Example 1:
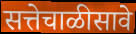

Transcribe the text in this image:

सत्तेचाळीसावे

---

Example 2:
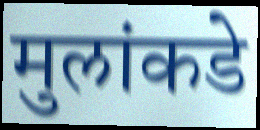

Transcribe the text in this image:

मुलांकडे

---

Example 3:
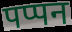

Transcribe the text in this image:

पप्पन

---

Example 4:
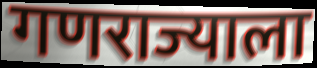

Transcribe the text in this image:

गणराज्याला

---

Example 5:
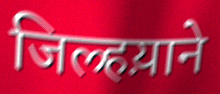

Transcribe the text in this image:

जिल्हय़ाने